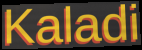
Kaladi